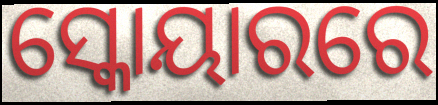
ସ୍କୋୟାରରେ